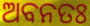
ଅବନତଃ